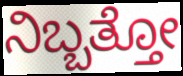
ನಿಬ್ಬತ್ತೋ